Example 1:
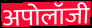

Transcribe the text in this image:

अपोलॉजी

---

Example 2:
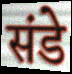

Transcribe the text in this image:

संडे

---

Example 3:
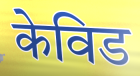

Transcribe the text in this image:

केविड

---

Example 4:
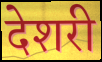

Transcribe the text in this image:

देशरी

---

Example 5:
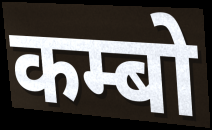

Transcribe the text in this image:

कम्बो